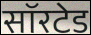
सॉरटेड